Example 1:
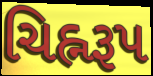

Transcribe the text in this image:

ચિહ્નરૂપ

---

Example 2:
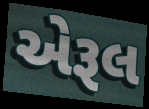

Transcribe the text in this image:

એરૂલ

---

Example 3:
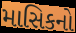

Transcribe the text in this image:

માસિકનો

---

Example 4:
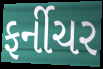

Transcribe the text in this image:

ફર્નીચર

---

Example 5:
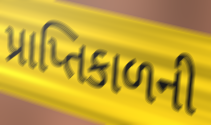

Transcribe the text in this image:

પ્રાપ્તિકાળની